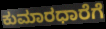
ಕುಮಾರಧಾರೆಗೆ